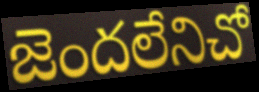
జెందలేనిచో